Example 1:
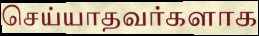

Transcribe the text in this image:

செய்யாதவர்களாக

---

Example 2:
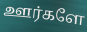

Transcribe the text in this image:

ஊர்களே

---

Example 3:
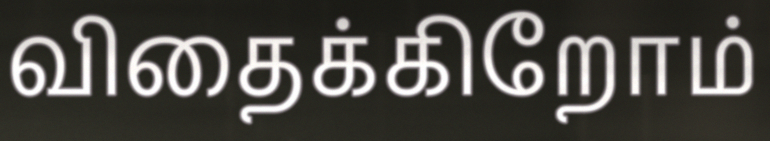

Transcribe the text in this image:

விதைக்கிறோம்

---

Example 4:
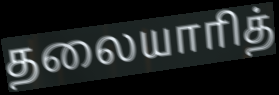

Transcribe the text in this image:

தலையாரித்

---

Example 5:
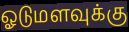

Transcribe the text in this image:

ஓடுமளவுக்கு